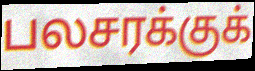
பலசரக்குக்